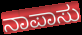
ನಾಪಾಸು